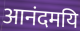
आनंदमयि